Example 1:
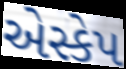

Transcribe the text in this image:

એસ્કેપ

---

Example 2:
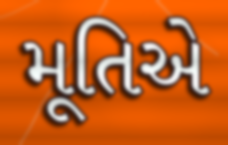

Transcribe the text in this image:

મૂતિએ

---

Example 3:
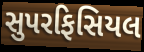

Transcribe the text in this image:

સુપરફિસિયલ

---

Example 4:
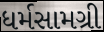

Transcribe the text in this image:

ધર્મસામગ્રી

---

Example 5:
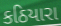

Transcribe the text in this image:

કઠિયારા